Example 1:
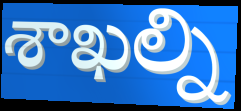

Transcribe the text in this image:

శాఖల్ని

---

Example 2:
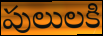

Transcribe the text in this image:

పులులకి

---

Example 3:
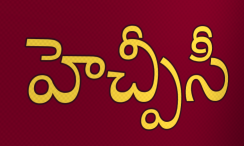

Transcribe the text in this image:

హెచ్పీసీ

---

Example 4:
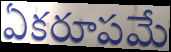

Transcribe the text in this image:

ఏకరూపమే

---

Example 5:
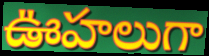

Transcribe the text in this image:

ఊహలుగా